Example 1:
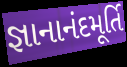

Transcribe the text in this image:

જ્ઞાનાનંદમૂર્તિ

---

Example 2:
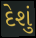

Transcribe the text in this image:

દેશું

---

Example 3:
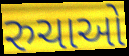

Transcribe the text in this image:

રુચાઓ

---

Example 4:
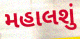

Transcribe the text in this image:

મહાલશું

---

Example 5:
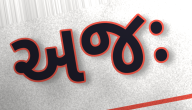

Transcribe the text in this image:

અજઃ